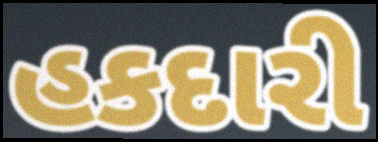
હકદારી